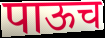
पाऊच